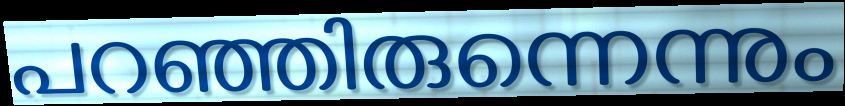
പറഞ്ഞിരുന്നെന്നും